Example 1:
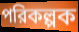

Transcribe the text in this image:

পরিকল্পক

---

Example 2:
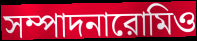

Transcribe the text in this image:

সম্পাদনারোমিও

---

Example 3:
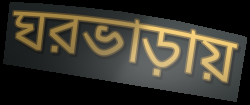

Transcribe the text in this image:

ঘরভাড়ায়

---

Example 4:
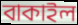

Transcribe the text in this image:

বাকাইল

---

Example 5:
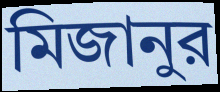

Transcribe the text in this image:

মিজানুর